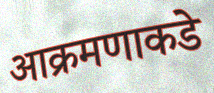
आक्रमणाकडे